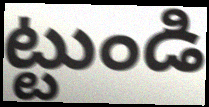
ట్టుండి